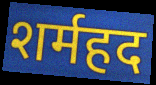
शर्महद